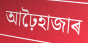
আঢ়ৈহাজাৰ